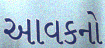
આવકનો